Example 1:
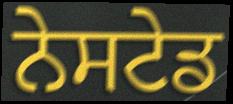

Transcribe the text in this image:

ਨੇਸਟੇਡ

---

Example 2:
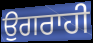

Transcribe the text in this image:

ਉਗਰਾਹੀ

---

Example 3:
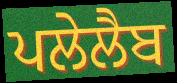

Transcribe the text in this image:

ਪਲੇਲੈਬ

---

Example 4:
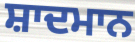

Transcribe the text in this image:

ਸ਼ਾਦਮਾਨ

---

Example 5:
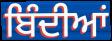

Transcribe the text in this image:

ਬਿੰਦੀਆਂ